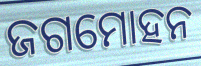
ଜଗମୋହନ